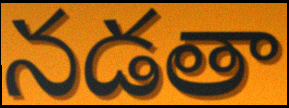
నడతా